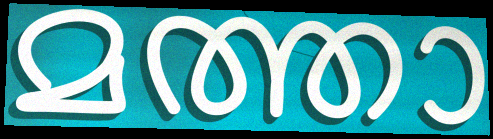
മത്താ